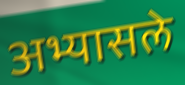
अभ्यासले